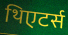
थिएटर्स